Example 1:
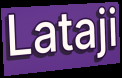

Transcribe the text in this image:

Lataji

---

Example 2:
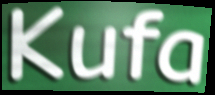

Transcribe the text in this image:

Kufa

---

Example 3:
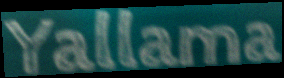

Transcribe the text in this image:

Yallama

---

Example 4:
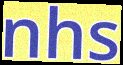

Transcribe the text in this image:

nhs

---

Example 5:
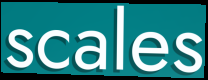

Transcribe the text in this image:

scales